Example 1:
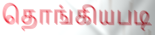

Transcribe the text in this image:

தொங்கியபடி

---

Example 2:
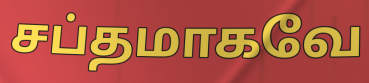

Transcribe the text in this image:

சப்தமாகவே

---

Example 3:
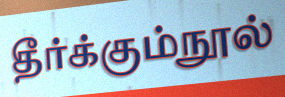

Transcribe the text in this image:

தீர்க்கும்நூல்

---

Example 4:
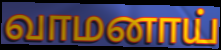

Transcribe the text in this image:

வாமனாய்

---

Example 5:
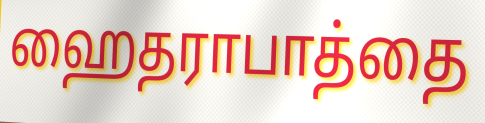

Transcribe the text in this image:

ஹைதராபாத்தை